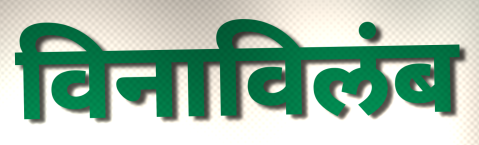
विनाविलंब